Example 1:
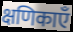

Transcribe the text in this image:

क्षणिकाएँ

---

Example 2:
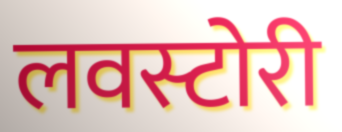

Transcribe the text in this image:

लवस्‍टोरी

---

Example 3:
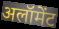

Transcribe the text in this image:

अलॉमेंट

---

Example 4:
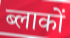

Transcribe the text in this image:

ब्लाकों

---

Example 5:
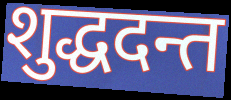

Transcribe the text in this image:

शुद्धदन्त